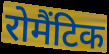
रोमैंटिक